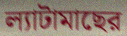
ল্যাটামাছের